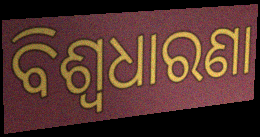
ବିଶ୍ୱଧାରଣା